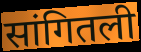
सांगितली